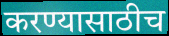
करण्यासाठीच